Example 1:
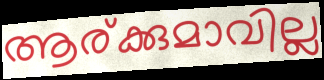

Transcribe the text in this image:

ആര്ക്കുമാവില്ല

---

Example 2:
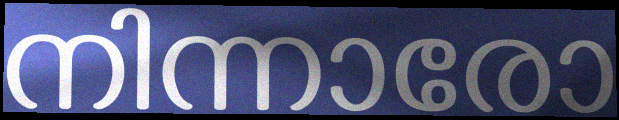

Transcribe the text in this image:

നിന്നാരോ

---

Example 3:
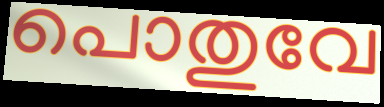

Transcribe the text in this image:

പൊതുവേ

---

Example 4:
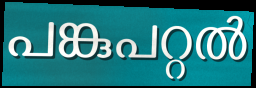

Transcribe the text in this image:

പങ്കുപറ്റൽ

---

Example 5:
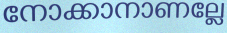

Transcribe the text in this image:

നോക്കാനാണല്ലേ